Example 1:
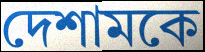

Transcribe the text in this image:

দেশামকে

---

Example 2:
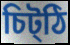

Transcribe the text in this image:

চিট্ঠি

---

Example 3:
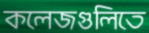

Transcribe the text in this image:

কলেজগুলিতে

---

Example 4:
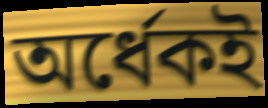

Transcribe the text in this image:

অর্ধেকই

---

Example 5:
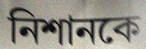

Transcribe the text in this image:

নিশানকে